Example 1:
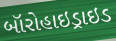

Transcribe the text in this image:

બૉરોહાઇડ્રાઇડ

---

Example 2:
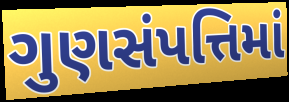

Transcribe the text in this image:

ગુણસંપત્તિમાં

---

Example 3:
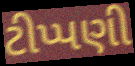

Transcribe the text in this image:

ટીપ્પણી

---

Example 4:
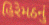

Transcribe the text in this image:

હિરેમઠનું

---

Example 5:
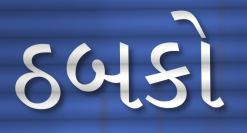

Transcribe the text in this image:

ઠબકો